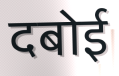
दबोई